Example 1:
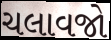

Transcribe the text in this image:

ચલાવજો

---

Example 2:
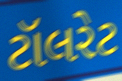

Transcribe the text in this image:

ટૉલરેટ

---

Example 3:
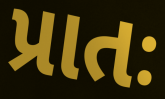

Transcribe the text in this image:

પ્રાતઃ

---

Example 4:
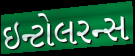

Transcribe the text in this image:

ઇન્ટોલરન્સ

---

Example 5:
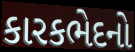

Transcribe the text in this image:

કારકભેદનો